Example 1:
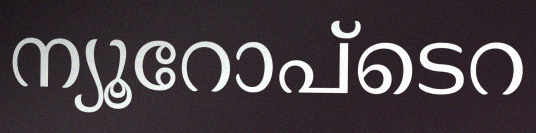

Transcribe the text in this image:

ന്യൂറോപ്ടെറ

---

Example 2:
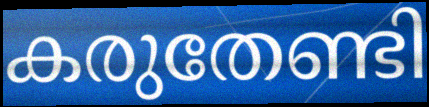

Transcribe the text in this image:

കരുതേണ്ടി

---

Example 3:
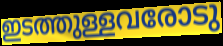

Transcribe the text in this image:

ഇടത്തുള്ളവരോടു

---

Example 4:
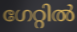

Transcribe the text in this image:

ഗേറ്റിൽ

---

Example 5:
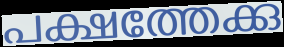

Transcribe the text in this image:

പക്ഷത്തേക്കു